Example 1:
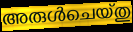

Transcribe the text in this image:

അരുൾചെയ്തു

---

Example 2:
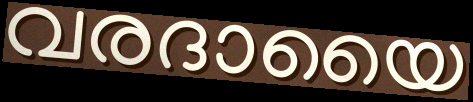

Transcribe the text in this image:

വരദായൈ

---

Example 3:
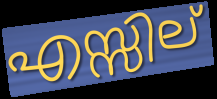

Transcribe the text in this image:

എസ്സില്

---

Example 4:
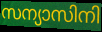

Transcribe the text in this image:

സന്യാസിനി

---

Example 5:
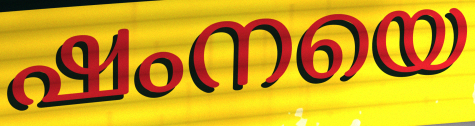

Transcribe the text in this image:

ഷംനയെ